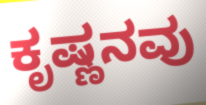
ಕೃಷ್ಣನವು